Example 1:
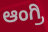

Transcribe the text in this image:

ಆಂಗ್ರಿ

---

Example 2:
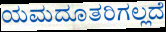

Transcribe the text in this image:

ಯಮದೂತರಿಗಲ್ಲದೆ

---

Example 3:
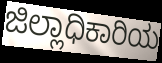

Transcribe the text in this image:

ಜಿಲ್ಲಾಧಿಕಾರಿಯ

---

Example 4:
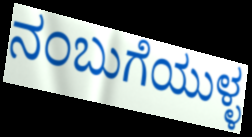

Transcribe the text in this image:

ನಂಬುಗೆಯುಳ್ಳ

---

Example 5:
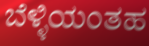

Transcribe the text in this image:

ಬೆಳ್ಳಿಯಂತಹ